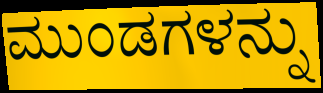
ಮುಂಡಗಳನ್ನು